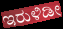
ಇರುಳಿಡೀ